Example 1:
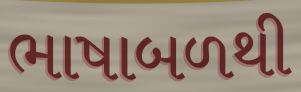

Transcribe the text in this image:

ભાષાબળથી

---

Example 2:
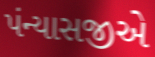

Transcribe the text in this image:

પંન્યાસજીએ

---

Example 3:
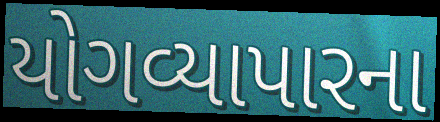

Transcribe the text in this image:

યોગવ્યાપારના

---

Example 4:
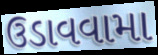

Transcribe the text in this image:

ઉડાવવામા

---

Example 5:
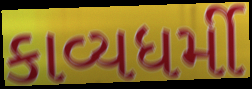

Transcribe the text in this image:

કાવ્યધર્મી